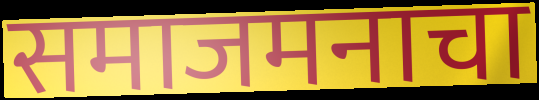
समाजमनाचा